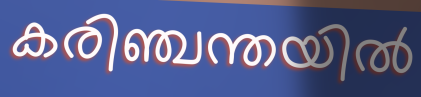
കരിഞ്ചന്തയിൽ